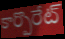
కార్పొరేట్